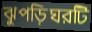
ঝুপড়িঘরটি